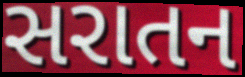
સરાતન